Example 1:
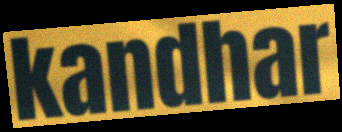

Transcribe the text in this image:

kandhar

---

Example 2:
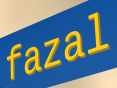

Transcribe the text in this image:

fazal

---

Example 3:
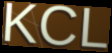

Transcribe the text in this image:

KCL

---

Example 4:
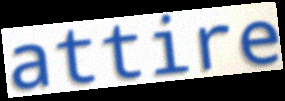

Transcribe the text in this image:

attire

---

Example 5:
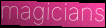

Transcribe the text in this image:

magicians